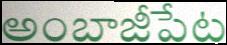
అంబాజీపేట